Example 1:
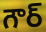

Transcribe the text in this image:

గౌర్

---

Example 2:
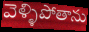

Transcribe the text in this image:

వెళ్ళిపోతాను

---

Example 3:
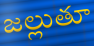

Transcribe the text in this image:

జల్లుతూ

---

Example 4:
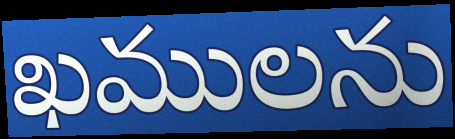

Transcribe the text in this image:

ఖములను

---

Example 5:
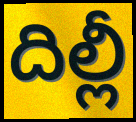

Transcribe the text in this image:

దిల్లీ